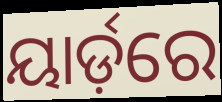
ୟାର୍ଡ଼ରେ